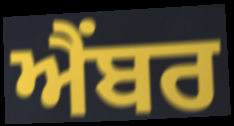
ਐਂਬਰ